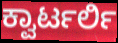
ಕ್ವಾರ್ಟರ್ಲಿ